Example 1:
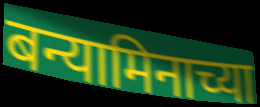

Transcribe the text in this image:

बन्यामिनाच्या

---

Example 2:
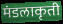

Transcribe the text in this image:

मंडलाकृती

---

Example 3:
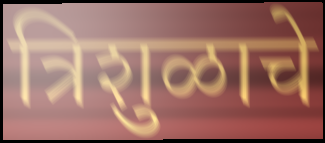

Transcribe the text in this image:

त्रिशुळाचे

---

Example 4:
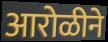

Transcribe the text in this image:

आरोळीने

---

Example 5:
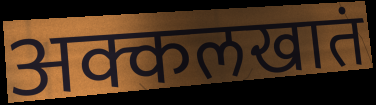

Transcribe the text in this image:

अक्कलखातं